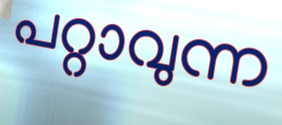
പറ്റാവുന്ന